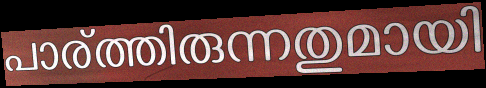
പാര്ത്തിരുന്നതുമായി